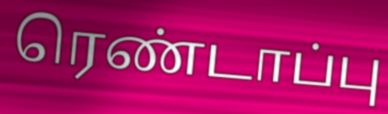
ரெண்டாப்பு